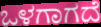
ಒಳಗಾಗದೆ